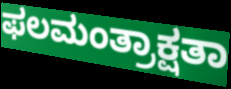
ಫಲಮಂತ್ರಾಕ್ಷತಾ